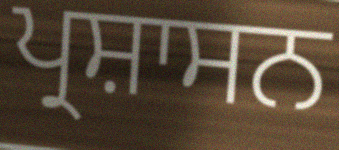
ਪ੍ਰਸ਼ਾਸਨ